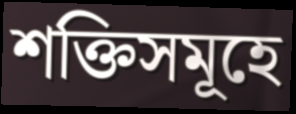
শক্তিসমূহে